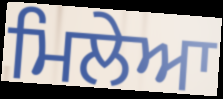
ਮਿਲੇਆ